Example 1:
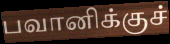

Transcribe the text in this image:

பவானிக்குச்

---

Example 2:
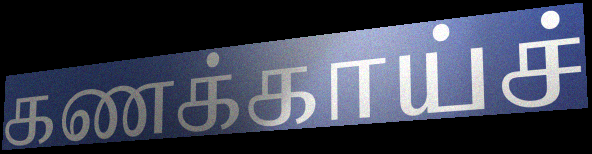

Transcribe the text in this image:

கணக்காய்ச்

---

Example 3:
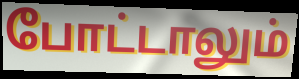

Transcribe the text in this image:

போட்டாலும்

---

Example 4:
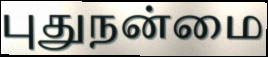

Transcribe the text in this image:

புதுநன்மை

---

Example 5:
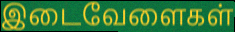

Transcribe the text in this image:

இடைவேளைகள்